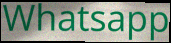
Whatsapp